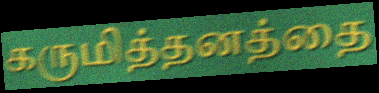
கருமித்தனத்தை